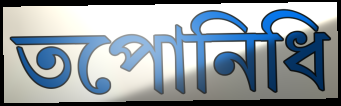
তপোনিধি